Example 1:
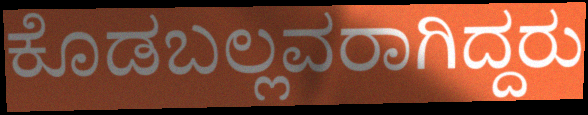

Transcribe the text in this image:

ಕೊಡಬಲ್ಲವರಾಗಿದ್ದರು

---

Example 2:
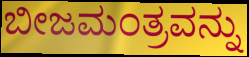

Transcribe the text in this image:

ಬೀಜಮಂತ್ರವನ್ನು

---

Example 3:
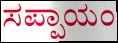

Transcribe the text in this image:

ಸಪ್ಪಾಯಂ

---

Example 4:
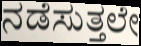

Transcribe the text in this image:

ನಡೆಸುತ್ತಲೇ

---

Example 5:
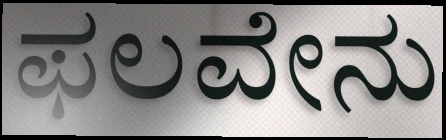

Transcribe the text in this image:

ಫಲವೇನು